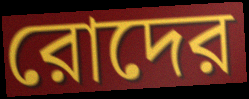
রোদের